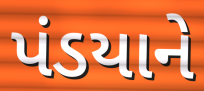
પંડયાને